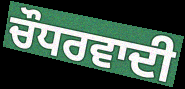
ਚੌਧਰਵਾਦੀ